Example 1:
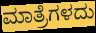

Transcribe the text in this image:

ಮಾತ್ರೆಗಳದು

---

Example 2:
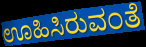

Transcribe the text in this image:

ಊಹಿಸಿರುವಂತೆ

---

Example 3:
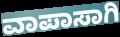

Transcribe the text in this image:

ವಾಪಾಸಾಗಿ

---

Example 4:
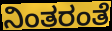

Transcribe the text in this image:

ನಿಂತರಂತೆ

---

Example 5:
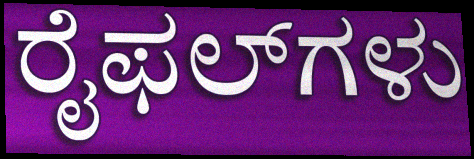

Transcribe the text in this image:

ರೈಫಲ್‌ಗಳು